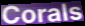
Corals